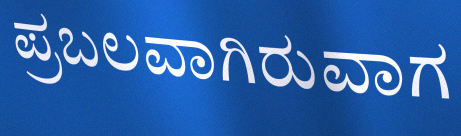
ಪ್ರಬಲವಾಗಿರುವಾಗ